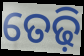
ତେଢ଼ି